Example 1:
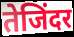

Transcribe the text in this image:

तेजिंदर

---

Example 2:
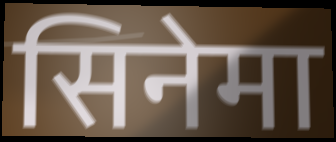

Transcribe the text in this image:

सिनेमा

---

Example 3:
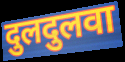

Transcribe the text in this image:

दुलदुलवा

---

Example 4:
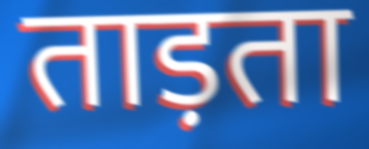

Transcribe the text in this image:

ताड़ता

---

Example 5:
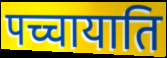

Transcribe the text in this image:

पच्चायाति